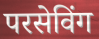
परसेविंग